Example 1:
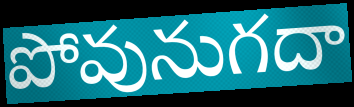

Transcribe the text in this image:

పోవునుగదా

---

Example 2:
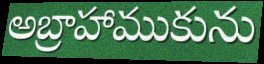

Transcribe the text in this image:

అబ్రాహాముకును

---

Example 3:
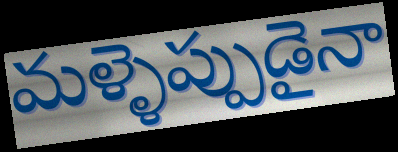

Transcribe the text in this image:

మళ్ళెప్పుడైనా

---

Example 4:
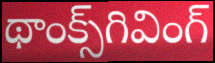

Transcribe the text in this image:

థాంక్స్‌గివింగ్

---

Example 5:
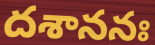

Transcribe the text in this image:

దశాననః